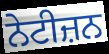
ਨੇਟੀਜ਼ਨ